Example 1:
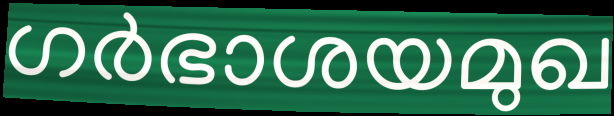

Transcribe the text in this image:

ഗർഭാശയമുഖ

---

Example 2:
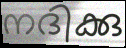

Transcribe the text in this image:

നദിക്കു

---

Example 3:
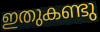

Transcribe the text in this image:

ഇതുകണ്ടു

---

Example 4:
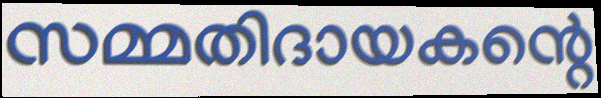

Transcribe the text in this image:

സമ്മതിദായകന്റെ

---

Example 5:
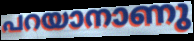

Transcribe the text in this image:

പറയാനാണു